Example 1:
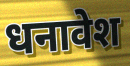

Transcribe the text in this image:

धनावेश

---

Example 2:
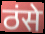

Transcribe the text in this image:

ठंसे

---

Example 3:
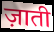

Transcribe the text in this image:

ज़ाती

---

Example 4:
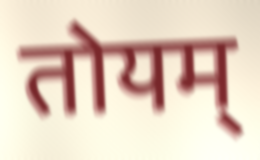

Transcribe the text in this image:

तोयम्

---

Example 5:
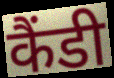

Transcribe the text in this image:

कैंडी